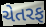
ચેતરફ